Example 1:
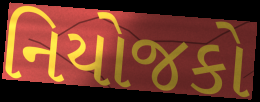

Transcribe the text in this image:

નિયોજકો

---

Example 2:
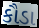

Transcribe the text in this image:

કૌડા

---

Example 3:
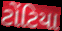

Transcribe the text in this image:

ટોંટિયા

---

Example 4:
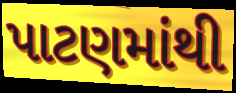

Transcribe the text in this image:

પાટણમાંથી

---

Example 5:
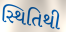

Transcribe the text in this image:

સ્થિતિથી